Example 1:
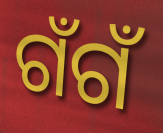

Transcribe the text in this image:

ଗଁଗଁ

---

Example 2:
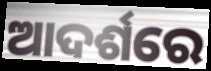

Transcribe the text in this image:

ଆଦର୍ଶରେ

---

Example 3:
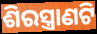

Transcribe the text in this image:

ଶିରସ୍ତ୍ରାଣଟି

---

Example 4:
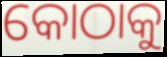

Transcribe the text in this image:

କୋଠାକୁ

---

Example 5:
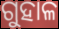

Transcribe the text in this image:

ଗୁହାଳ